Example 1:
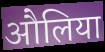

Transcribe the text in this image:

औलिया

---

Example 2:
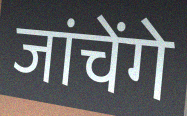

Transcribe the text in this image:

जांचेंगे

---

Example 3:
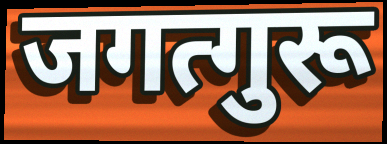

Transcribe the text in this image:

जगत्गुरू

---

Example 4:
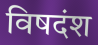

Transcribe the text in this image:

विषदंश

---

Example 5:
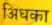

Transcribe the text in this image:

अिधका